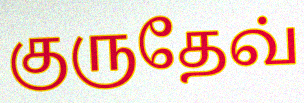
குருதேவ்